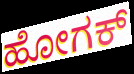
ಹೋಗಕ್